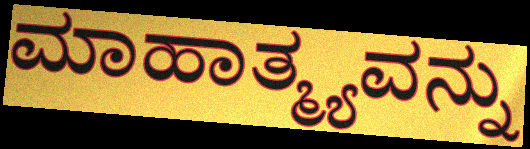
ಮಾಹಾತ್ಮ್ಯವನ್ನು